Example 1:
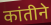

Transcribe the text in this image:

कांतीने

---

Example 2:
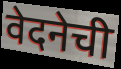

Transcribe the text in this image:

वेदनेची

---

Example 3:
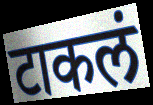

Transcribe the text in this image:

टाकलं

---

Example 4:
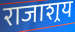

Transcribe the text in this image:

राजाश्रय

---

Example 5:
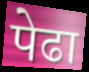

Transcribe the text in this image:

पेढा